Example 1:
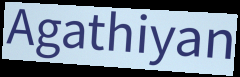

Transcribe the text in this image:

Agathiyan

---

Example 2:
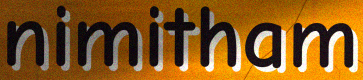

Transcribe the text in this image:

nimitham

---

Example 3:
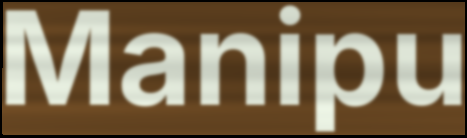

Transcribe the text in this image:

Manipu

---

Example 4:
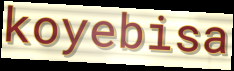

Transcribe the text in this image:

koyebisa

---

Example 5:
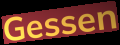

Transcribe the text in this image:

Gessen